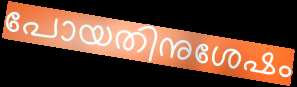
പോയതിനുശേഷം